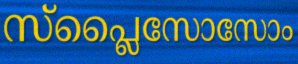
സ്പ്ലൈസോസോം